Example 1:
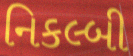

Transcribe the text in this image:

નિકલ્બી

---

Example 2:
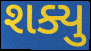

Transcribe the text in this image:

શક્યુ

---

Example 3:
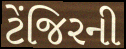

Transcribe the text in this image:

ટેંજિરની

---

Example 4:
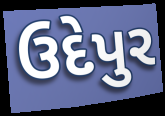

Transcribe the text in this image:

ઉદેપુર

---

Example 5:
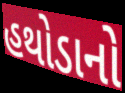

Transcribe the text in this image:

હથોડાનો